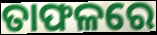
ତାଫଳରେ